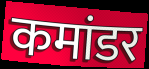
कमांडर